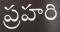
ప్రహరి